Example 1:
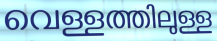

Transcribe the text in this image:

വെള്ളത്തിലുള്ള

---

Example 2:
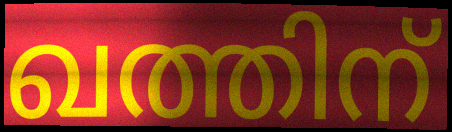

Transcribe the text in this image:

ഖത്തിന്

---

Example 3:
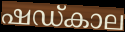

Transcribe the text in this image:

ഷഡ്കാല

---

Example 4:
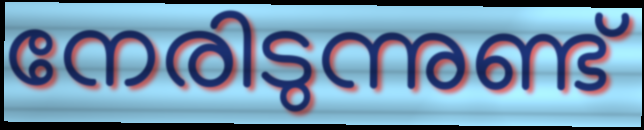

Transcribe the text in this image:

നേരിടുന്നുണ്ട്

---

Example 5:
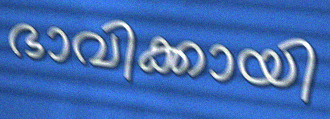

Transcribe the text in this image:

ഭാവിക്കായി